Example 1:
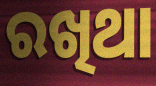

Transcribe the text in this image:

ରଖିଥା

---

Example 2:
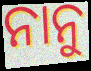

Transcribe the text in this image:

ନାନୁ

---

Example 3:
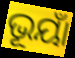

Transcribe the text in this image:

ଭୂୟାଁ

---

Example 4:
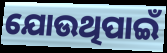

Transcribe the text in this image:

ଯୋଉଥିପାଇଁ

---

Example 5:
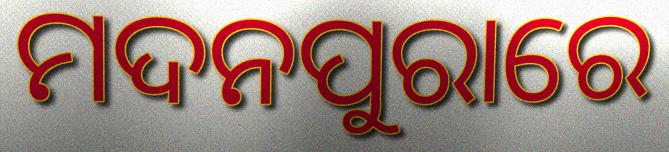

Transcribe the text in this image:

ମଦନପୁରାରେ